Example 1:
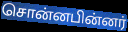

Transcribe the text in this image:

சொன்னபின்னர்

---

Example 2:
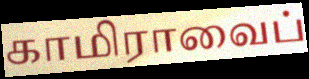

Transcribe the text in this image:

காமிராவைப்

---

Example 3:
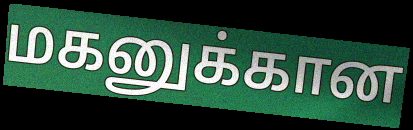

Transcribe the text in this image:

மகனுக்கான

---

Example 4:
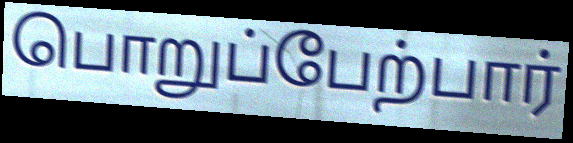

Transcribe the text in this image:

பொறுப்பேற்பார்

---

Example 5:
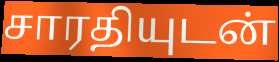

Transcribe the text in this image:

சாரதியுடன்